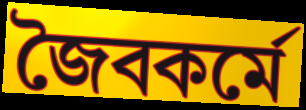
জৈবকর্মে